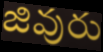
జివురు